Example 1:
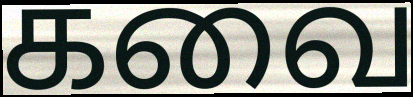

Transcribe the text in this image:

கவை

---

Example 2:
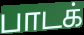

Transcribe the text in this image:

பாடக்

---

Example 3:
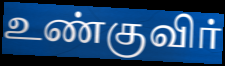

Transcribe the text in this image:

உண்குவிர்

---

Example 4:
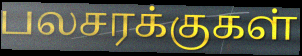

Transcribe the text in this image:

பலசரக்குகள்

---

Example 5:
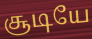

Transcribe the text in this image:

சூடியே